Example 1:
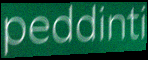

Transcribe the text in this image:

peddinti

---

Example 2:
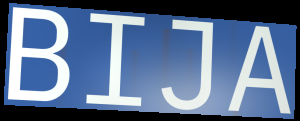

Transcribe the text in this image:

BIJA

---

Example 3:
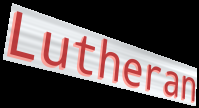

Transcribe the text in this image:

Lutheran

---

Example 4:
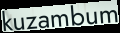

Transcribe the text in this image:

kuzambum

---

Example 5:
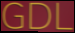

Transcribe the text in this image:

GDL